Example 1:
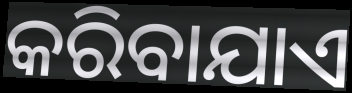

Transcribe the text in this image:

କରିବାଯାଏ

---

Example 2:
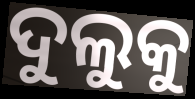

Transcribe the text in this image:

ଦୁଲୁକୁ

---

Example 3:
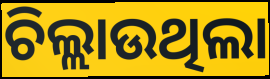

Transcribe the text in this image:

ଚିଲ୍ଲାଉଥିଲା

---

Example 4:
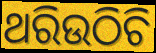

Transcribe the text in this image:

ଥରିଉଠିଚି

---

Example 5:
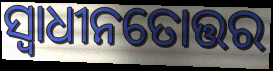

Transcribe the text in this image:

ସ୍ୱାଧୀନତୋତ୍ତର